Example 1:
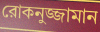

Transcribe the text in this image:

রোকনুজ্জামান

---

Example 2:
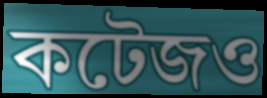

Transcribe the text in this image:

কটেজও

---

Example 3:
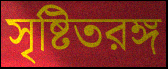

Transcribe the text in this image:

সৃষ্টিতরঙ্গ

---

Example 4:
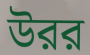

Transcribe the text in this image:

উরর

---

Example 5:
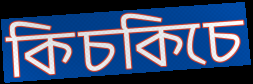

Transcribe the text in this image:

কিচকিচে